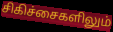
சிகிச்சைகளிலும்